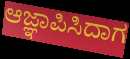
ಆಜ್ಞಾಪಿಸಿದಾಗ